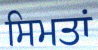
ਸਿਮਤਾਂ